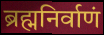
ब्रह्मनिर्वाणं